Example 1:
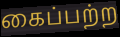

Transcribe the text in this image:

கைப்பற்ற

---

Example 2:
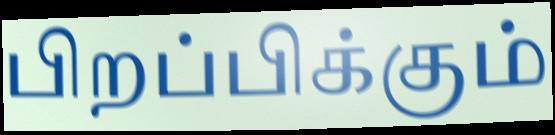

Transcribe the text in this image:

பிறப்பிக்கும்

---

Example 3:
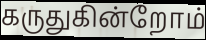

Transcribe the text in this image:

கருதுகின்றோம்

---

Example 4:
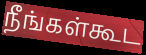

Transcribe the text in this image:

நீங்கள்கூட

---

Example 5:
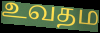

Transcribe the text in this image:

உவதம